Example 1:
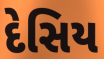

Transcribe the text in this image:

દેસિય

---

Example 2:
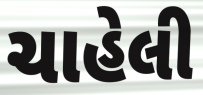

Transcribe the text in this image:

ચાહેલી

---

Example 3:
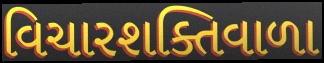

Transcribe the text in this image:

વિચારશક્તિવાળા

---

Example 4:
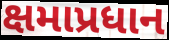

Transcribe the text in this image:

ક્ષમાપ્રધાન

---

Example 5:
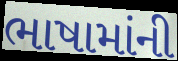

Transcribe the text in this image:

ભાષામાંની